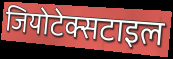
जियोटेक्सटाइल